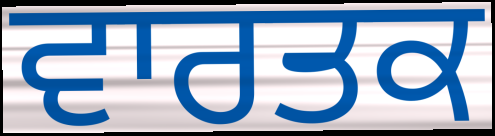
ਵਾਰਤਕ